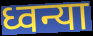
ध्वन्या